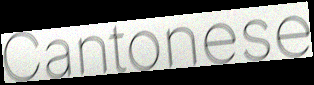
Cantonese